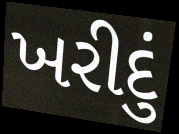
ખરીદું